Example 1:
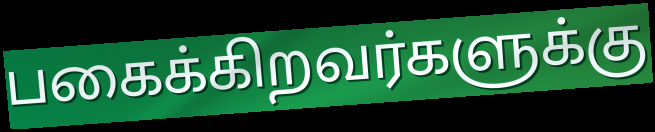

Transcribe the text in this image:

பகைக்கிறவர்களுக்கு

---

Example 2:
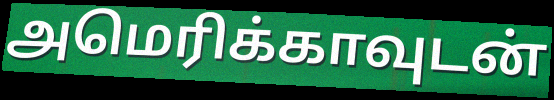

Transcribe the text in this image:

அமெரிக்காவுடன்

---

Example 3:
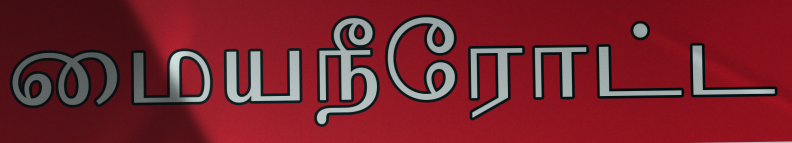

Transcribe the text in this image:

மையநீரோட்ட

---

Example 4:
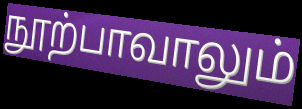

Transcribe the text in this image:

நூற்பாவாலும்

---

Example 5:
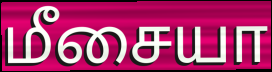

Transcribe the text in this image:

மீசையா